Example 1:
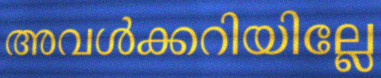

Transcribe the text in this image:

അവൾക്കറിയില്ലേ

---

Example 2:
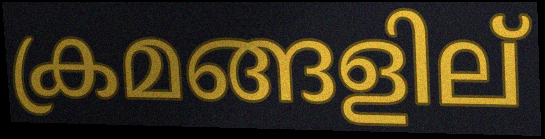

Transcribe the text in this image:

ക്രമങ്ങളില്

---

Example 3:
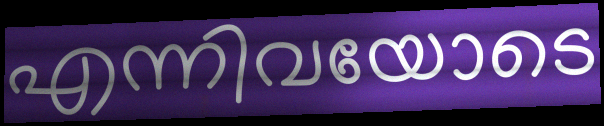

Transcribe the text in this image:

എന്നിവയോടെ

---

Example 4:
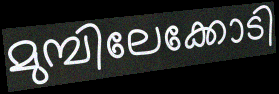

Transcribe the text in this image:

മുമ്പിലേക്കോടി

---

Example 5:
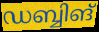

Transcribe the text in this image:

ഡബ്ബിങ്